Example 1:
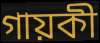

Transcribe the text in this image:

গায়কী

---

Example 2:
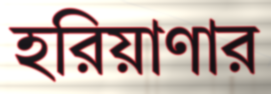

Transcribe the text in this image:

হরিয়াণার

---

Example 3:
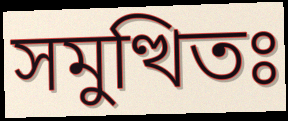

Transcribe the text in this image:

সমুত্থিতঃ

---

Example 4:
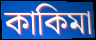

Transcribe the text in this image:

কাকিমা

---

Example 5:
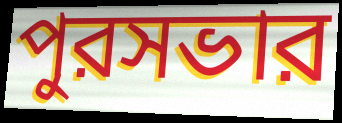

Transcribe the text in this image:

পুরসভার